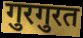
गुरगुरत